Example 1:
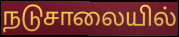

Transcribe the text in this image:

நடுசாலையில்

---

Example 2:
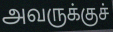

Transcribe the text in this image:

அவருக்குச்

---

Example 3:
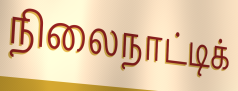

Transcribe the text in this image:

நிலைநாட்டிக்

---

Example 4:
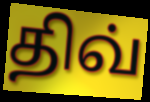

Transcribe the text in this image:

திவ்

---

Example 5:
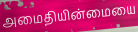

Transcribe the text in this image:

அமைதியின்மையை